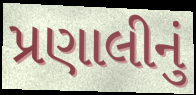
પ્રણાલીનું